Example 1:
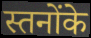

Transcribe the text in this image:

स्तनोंके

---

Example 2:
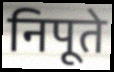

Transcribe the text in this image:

निपूते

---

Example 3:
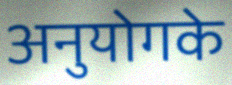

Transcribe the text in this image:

अनुयोगके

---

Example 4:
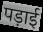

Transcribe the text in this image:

पड़ाई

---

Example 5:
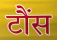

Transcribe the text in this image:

टौंस